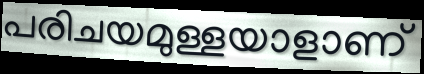
പരിചയമുള്ളയാളാണ്